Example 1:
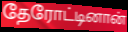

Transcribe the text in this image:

தேரோட்டினான்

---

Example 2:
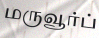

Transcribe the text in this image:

மருவூர்ப்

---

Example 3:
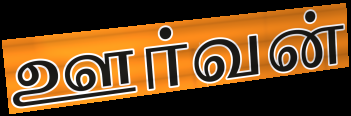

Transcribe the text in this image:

ஊர்வன்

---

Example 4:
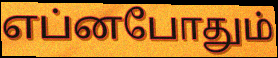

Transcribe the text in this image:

எப்னபோதும்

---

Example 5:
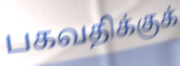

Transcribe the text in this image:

பகவதிக்குக்